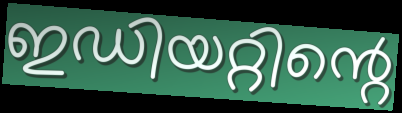
ഇഡിയറ്റിന്റെ